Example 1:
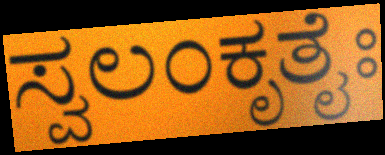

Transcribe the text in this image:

ಸ್ವಲಂಕೃತೈಃ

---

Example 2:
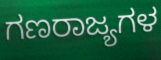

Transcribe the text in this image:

ಗಣರಾಜ್ಯಗಳ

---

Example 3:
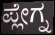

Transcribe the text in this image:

ಪ್ಲೇಗ್ನ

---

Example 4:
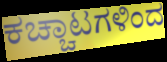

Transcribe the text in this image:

ಕಚ್ಚಾಟಗಳಿಂದ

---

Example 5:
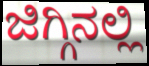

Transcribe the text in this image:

ಜಿಗ್ಗಿನಲ್ಲಿ